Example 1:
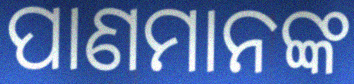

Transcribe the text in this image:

ପାଣମାନଙ୍କ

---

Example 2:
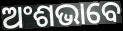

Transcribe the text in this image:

ଅଂଶଭାବେ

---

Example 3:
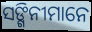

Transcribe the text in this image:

ସଙ୍ଗିନୀମାନେ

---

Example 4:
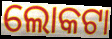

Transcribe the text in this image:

ଲୋକଟା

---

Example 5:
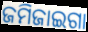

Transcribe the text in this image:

ଜମିଜାଇଗା